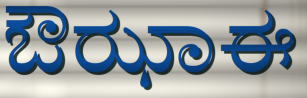
ಔಝಾಈ